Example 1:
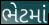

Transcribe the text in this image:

ભેટમાં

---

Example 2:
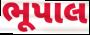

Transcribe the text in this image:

ભૂપાલ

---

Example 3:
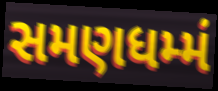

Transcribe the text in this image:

સમણધમ્મં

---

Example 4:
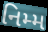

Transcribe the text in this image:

નિમ્મ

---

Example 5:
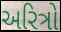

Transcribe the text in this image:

અરિત્રો